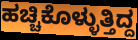
ಹಚ್ಚಿಕೊಳ್ಳುತ್ತಿದ್ದ